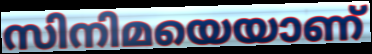
സിനിമയെയാണ്